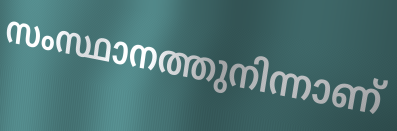
സംസ്ഥാനത്തുനിന്നാണ്